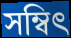
সম্বিৎ